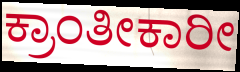
ಕ್ರಾಂತೀಕಾರೀ